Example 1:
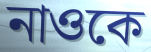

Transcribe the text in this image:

নাওকে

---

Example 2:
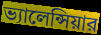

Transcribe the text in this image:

ভ্যালেন্সিয়ার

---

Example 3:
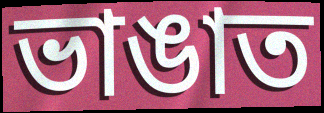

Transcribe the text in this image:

ভাঙাত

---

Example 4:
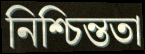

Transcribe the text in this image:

নিশ্চিন্ততা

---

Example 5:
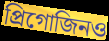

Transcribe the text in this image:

প্রিগোজিনও